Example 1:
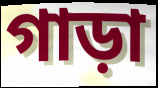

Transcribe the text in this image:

গাড়া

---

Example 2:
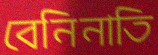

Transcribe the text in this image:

বেনিনাতি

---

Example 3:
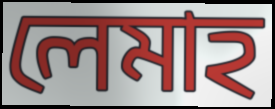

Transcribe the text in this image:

লেমাহ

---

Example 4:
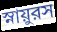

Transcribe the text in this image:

স্নায়ুরস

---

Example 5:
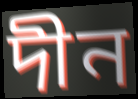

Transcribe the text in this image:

দীন